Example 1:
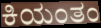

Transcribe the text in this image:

ಕಿಯಂತಂ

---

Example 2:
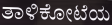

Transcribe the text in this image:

ತಾಳಿಕೋಟೆಯ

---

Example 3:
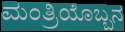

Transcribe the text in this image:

ಮಂತ್ರಿಯೊಬ್ಬನ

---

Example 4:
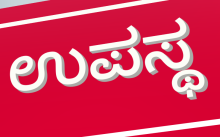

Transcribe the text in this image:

ಉಪಸ್ಥ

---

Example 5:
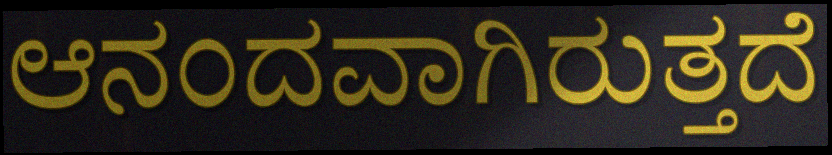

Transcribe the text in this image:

ಆನಂದವಾಗಿರುತ್ತದೆ